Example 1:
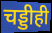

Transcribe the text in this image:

चड्डीही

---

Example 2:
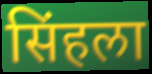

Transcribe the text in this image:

सिंहला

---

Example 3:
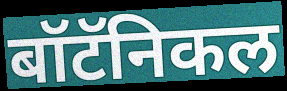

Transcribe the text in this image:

बॉटॅनिकल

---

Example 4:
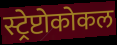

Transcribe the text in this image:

स्ट्रेप्टोकोकल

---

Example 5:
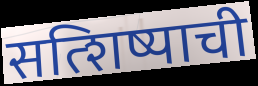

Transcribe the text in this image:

सत्शिष्याची